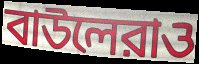
বাউলেরাও